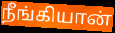
நீங்கியான்